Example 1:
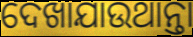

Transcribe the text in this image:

ଦେଖାଯାଉଥାନ୍ତା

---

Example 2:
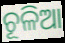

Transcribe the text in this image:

ଚୂଳିଆ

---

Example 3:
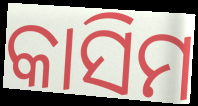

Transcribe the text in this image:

କାସିମ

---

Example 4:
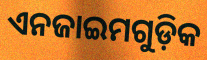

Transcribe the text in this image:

ଏନଜାଇମଗୁଡ଼ିକ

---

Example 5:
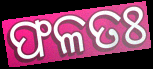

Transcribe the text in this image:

ଫଳତଃ